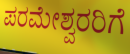
ಪರಮೇಶ್ವರರಿಗೆ